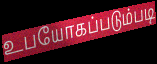
உபயோகப்படும்படி